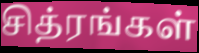
சித்ரங்கள்